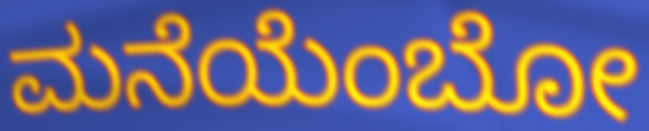
ಮನೆಯೆಂಬೋ